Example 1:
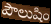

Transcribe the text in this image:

పౌలుషిం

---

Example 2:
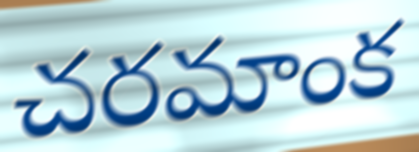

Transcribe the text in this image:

చరమాంక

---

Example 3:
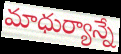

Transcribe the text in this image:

మాధుర్యాన్నే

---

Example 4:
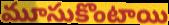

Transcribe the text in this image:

మూసుకొంటాయి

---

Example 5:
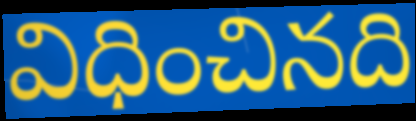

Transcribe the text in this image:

విధించినది